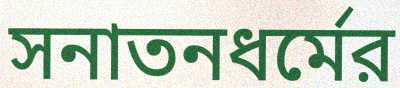
সনাতনধর্মের